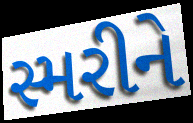
સ્મરીને